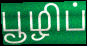
பூழிப்